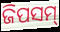
ଜିପସମ୍